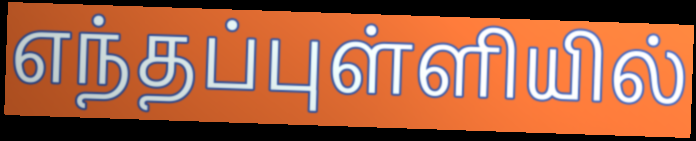
எந்தப்புள்ளியில்